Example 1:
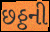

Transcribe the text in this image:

છઠ્ઠની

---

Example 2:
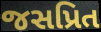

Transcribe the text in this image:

જસપ્રિત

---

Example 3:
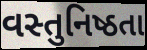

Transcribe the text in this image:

વસ્તુનિષ્ઠતા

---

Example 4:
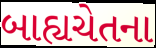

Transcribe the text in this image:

બાહ્યચેતના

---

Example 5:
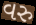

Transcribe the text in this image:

વરુ